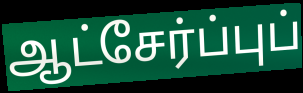
ஆட்சேர்ப்புப்